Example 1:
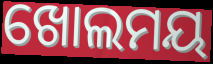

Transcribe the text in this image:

ଖୋଲମୟ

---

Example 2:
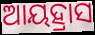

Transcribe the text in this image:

ଆୟହ୍ରାସ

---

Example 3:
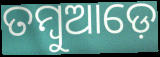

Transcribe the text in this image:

ତମ୍ବୁଆଡ଼େ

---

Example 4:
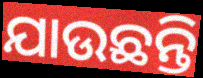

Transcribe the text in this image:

ଯାଉଛନ୍ତି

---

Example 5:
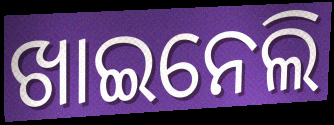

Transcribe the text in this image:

ଖାଇନେଲି